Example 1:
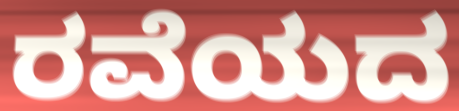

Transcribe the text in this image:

ರವೆಯದ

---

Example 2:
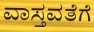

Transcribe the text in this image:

ವಾಸ್ತವತೆಗೆ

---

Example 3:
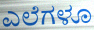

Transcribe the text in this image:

ಎಲೆಗಳೂ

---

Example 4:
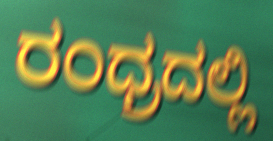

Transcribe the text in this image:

ರಂಧ್ರದಲ್ಲಿ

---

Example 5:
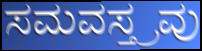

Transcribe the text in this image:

ಸಮವಸ್ತ್ರವು